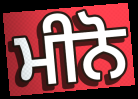
ਮੀਨੋ